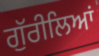
ਗੁੱਰੀਲਿਆਂ